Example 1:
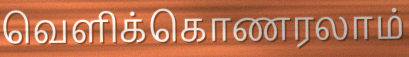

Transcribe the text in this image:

வெளிக்கொணரலாம்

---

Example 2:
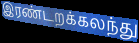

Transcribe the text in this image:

இரண்டறக்கலந்து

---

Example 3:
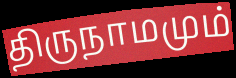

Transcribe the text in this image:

திருநாமமும்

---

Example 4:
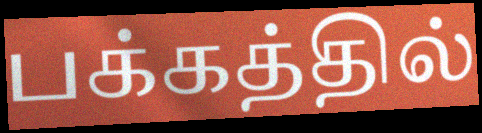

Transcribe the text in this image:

பக்கத்தில்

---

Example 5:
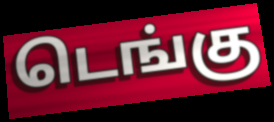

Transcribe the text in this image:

டெங்கு